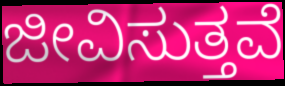
ಜೀವಿಸುತ್ತವೆ